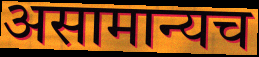
असामान्यच